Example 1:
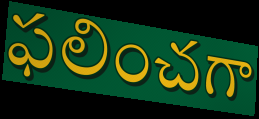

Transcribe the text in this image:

ఫలించగా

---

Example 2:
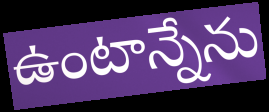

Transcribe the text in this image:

ఉంటాన్నేను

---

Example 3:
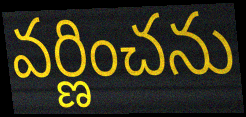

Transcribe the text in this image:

వర్ణించను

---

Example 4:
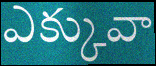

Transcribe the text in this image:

ఎక్కువా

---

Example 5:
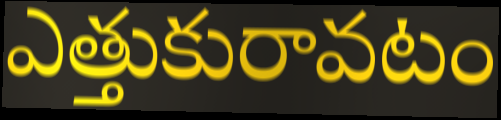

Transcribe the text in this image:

ఎత్తుకురావటం